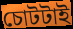
চোটটাই